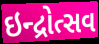
ઇન્દ્રોત્સવ